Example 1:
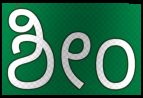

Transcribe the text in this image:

ಶೀಂ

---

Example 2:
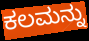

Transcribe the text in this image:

ಕಲಮನ್ನು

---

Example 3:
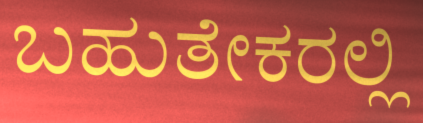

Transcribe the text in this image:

ಬಹುತೇಕರಲ್ಲಿ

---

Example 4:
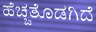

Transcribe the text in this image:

ಹೆಚ್ಚತೊಡಗಿದೆ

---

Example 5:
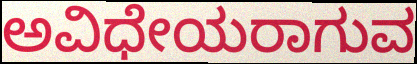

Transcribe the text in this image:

ಅವಿಧೇಯರಾಗುವ